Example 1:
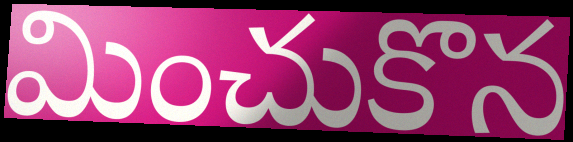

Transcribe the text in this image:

మించుకొన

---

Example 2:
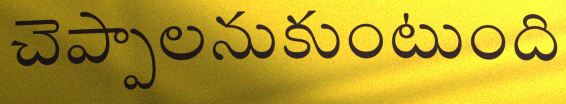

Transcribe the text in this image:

చెప్పాలనుకుంటుంది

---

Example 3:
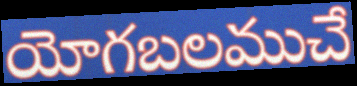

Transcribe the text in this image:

యోగబలముచే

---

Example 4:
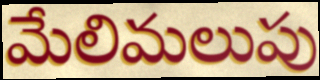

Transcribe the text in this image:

మేలిమలుపు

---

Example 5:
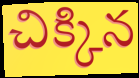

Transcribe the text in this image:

చిక్కిన